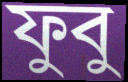
ফুবু